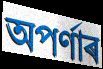
অপৰ্ণাৰ